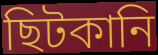
ছিটকানি